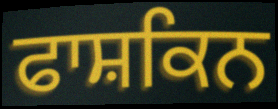
ਫਾਸ਼ਕਿਨ